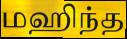
மஹிந்த